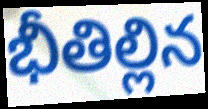
భీతిల్లిన